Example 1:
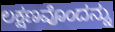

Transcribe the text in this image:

ಲಕ್ಷಣವೊಂದನ್ನು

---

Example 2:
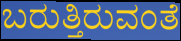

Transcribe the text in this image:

ಬರುತ್ತಿರುವಂತೆ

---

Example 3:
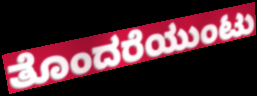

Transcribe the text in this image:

ತೊಂದರೆಯುಂಟು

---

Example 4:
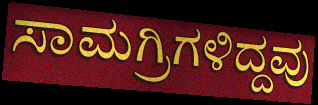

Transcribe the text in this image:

ಸಾಮಗ್ರಿಗಳಿದ್ದವು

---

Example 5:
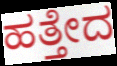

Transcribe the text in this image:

ಹತ್ತೇದ